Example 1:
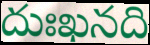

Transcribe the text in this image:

దుఃఖనది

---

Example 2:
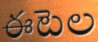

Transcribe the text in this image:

ఈటెల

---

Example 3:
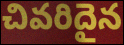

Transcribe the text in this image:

చివరిదైన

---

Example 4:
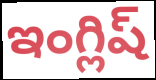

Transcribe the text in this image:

ఇంగ్లిష్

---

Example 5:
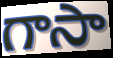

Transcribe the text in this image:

గాసా